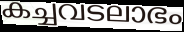
കച്ചവടലാഭം